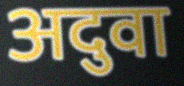
अदुवा